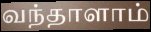
வந்தாளாம்